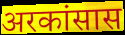
अरकांसास